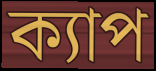
ক্যাপ